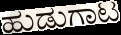
ಹುಡುಗಾಟ